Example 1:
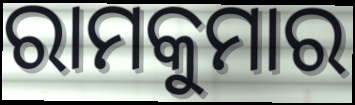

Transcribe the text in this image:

ରାମକୁମାର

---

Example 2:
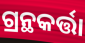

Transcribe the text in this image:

ଗ୍ରନ୍ଥକର୍ତ୍ତା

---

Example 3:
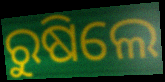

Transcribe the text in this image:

ରୁଷିଲେ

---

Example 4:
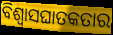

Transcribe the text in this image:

ବିଶ୍ଵାସଘାତକତାର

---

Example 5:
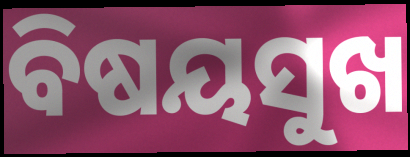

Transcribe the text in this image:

ବିଷୟସୁଖ